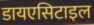
डायएसिटाइल